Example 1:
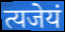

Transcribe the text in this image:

त्यजेयं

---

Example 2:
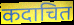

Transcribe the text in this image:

कदाचित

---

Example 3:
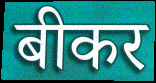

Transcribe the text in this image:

बीकर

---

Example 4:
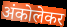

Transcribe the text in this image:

अंकोलेकर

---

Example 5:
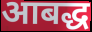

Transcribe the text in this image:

आबद्ध